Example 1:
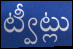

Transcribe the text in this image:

ట్వీట్లు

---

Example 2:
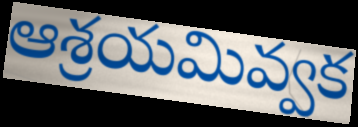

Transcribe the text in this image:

ఆశ్రయమివ్వక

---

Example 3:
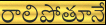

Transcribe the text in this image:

రాలిపోతూనే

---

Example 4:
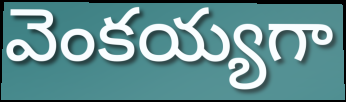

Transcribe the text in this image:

వెంకయ్యగా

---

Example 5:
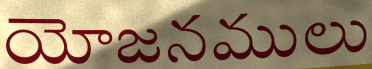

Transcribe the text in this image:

యోజనములు